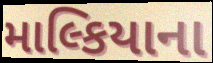
માલ્કિયાના